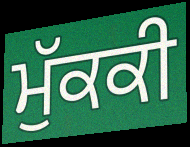
ਮੁੱਕਕੀ